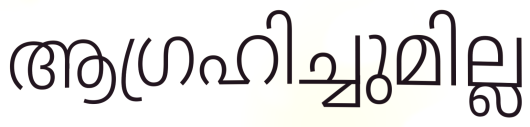
ആഗ്രഹിച്ചുമില്ല